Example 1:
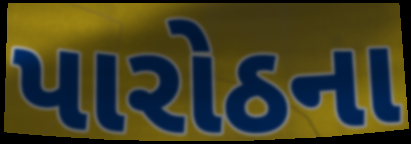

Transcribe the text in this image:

પારોઠના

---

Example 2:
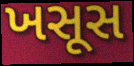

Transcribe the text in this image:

ખસૂસ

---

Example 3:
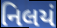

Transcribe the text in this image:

નિલયં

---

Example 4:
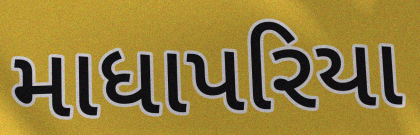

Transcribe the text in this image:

માધાપરિયા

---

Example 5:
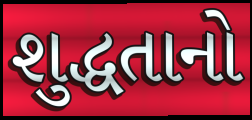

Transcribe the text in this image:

શુદ્ધતાનો